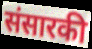
संसारकी